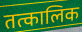
तत्कालिक